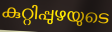
കുറ്റിപ്പുഴയുടെ